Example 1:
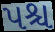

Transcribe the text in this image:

પશ્ચ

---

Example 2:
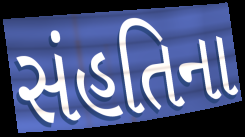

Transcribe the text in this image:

સંહતિના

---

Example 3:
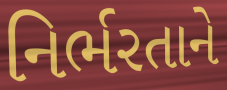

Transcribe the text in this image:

નિર્ભરતાને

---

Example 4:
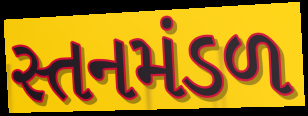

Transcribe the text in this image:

સ્તનમંડળ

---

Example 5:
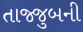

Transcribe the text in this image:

તાજ્જુબની